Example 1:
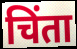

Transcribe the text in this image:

चिंता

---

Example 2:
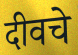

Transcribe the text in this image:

दीवचे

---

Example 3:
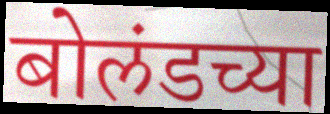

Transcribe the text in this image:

बोलंडच्या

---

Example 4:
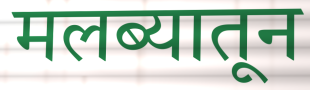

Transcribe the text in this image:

मलब्यातून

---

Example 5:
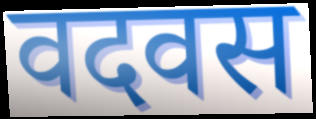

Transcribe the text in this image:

वदवस